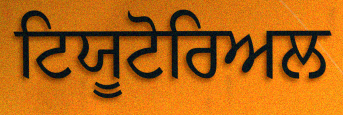
ਟਿਯੂਟੋਰਿਅਲ